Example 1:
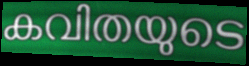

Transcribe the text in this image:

കവിതയുടെ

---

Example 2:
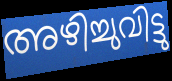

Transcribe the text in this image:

അഴിച്ചുവിട്ടു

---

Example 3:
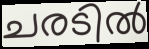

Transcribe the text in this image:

ചരടിൽ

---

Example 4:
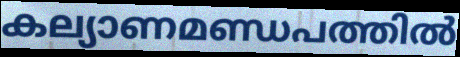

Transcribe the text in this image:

കല്യാണമണ്ഡപത്തിൽ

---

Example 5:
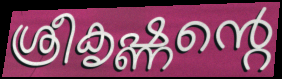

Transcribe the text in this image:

ശ്രീകൃഷ്ണന്റെ